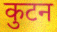
कुटन